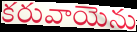
కరువాయెను